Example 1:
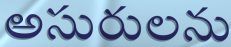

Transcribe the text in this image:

అసురులను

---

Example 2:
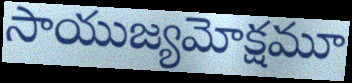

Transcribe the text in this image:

సాయుజ్యమోక్షమూ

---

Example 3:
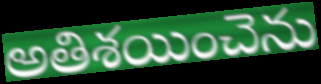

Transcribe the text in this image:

అతిశయించెను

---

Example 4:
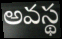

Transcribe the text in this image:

అవస్థ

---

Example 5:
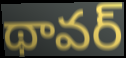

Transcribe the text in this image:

థావర్